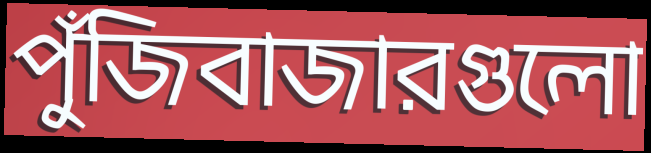
পুঁজিবাজারগুলো